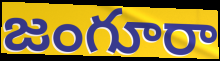
జంగూరా